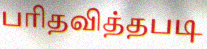
பரிதவித்தபடி